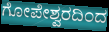
ಗೋಪೇಶ್ವರದಿಂದ